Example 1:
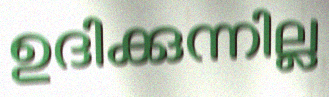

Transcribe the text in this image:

ഉദിക്കുന്നില്ല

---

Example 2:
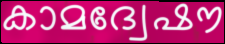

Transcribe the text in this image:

കാമദ്വേഷൗ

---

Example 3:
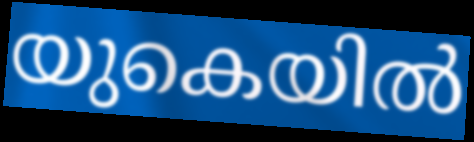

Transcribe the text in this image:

യുകെയിൽ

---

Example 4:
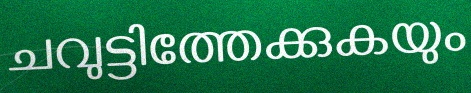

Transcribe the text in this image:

ചവുട്ടിത്തേക്കുകയും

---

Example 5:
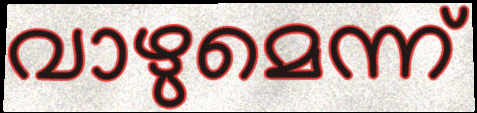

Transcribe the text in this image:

വാഴുമെന്ന്